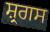
ਸ਼੍ਰਗਸ